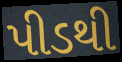
પીડથી